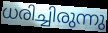
ധരിച്ചിരുന്നു